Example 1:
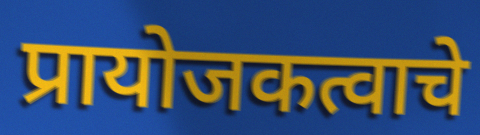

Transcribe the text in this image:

प्रायोजकत्वाचे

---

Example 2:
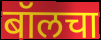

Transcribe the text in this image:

बॉलचा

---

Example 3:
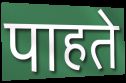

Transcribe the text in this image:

पाहते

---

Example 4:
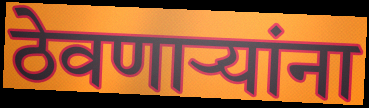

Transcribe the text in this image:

ठेवणार्‍यांना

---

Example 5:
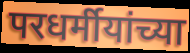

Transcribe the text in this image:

परधर्मीयांच्या